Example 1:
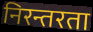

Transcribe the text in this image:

निरन्तरता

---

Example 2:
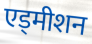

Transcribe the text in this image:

एड्मीशन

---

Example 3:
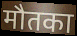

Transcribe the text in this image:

मौतका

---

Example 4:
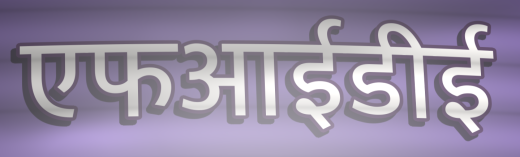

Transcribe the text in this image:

एफआईडीई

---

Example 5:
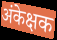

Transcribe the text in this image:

अंकेक्षक